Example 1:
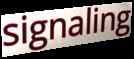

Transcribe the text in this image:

signaling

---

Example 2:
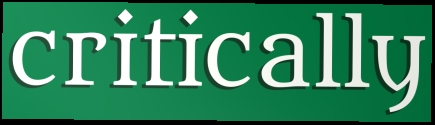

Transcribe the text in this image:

critically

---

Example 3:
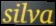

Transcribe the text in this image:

silva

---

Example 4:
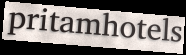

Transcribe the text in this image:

pritamhotels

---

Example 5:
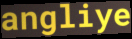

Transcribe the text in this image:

angliye